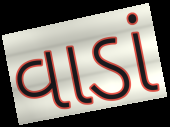
વાડાં